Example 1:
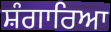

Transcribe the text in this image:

ਸ਼ੰਗਾਰਿਆ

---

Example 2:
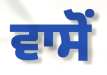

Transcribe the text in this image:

ਵਾਸੋਂ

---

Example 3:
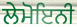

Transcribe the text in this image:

ਲੇਮੋਇਨੀ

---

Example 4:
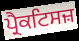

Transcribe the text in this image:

ਪ੍ਰੈਕਟਿਸਜ਼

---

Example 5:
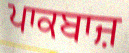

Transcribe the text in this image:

ਪਾਕਬਾਜ਼